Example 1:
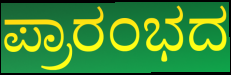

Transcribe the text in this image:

ಪ್ರಾರಂಭದ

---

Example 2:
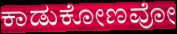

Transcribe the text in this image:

ಕಾಡುಕೋಣವೋ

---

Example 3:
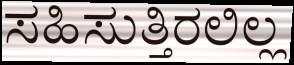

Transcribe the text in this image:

ಸಹಿಸುತ್ತಿರಲಿಲ್ಲ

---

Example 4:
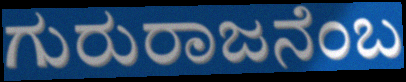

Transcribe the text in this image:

ಗುರುರಾಜನೆಂಬ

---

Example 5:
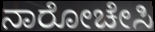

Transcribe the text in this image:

ನಾರೋಚೇಸಿ